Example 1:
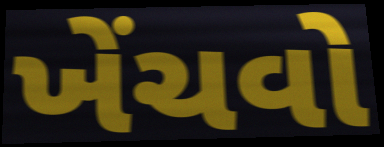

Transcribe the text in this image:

ખેંચવો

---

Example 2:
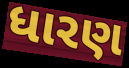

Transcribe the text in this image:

ધારણ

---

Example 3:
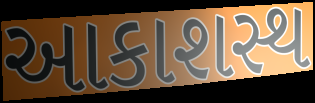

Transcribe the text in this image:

આકાશસ્થ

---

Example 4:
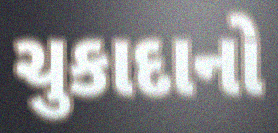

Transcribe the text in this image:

ચુકાદાનો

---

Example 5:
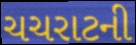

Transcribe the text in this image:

ચચરાટની